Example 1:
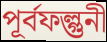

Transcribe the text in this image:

পূর্বফল্গুনী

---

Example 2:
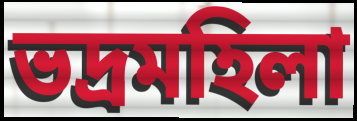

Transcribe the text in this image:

ভদ্রমহিলা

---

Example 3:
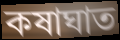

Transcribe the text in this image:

কষাঘাত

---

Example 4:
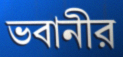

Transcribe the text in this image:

ভবানীর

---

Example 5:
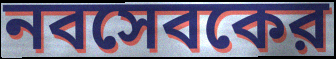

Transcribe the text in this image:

নবসেবকের